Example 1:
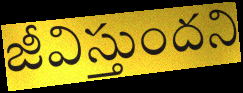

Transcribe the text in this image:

జీవిస్తుందని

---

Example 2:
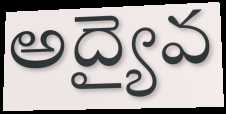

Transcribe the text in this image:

అద్యైవ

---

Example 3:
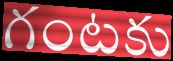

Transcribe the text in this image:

గంటకు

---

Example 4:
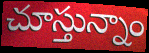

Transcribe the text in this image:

చూస్తున్నాం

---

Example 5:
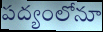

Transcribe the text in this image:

పద్యంలోనూ